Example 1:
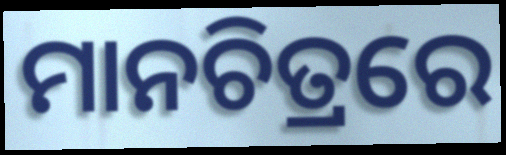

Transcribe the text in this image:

ମାନଚିତ୍ରରେ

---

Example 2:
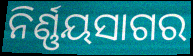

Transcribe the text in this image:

ନିର୍ଣ୍ଣୟସାଗର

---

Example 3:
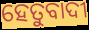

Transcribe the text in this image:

ହେତୁବାଦୀ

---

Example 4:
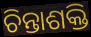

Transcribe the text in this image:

ଚିନ୍ତାଶକ୍ତି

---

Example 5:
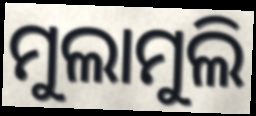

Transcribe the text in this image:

ମୁଲାମୁଲି